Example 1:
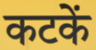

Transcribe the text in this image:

कटकें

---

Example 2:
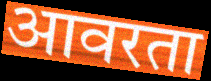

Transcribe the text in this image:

आवरता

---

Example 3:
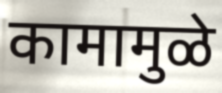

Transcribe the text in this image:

कामामुळे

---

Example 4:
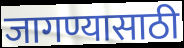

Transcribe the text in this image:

जागण्यासाठी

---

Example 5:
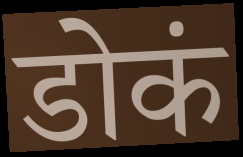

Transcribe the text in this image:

डोकं